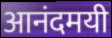
आनंदमयी